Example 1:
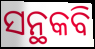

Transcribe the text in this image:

ସନ୍ଥକବି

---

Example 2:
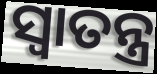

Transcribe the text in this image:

ସ୍ୱାତନ୍ତ୍ର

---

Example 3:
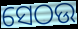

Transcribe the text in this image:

ସେଠଉ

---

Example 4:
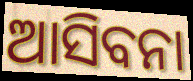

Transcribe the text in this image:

ଆସିବନା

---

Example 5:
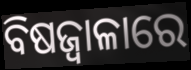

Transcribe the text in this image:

ବିଷଜ୍ୱାଳାରେ